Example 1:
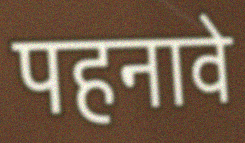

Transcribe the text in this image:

पहनावे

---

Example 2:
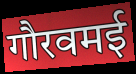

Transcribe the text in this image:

गौरवमई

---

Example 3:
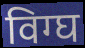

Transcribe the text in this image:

विग्घ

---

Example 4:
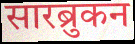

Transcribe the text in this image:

सारब्रुकन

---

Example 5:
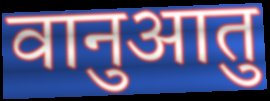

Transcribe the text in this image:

वानुआतु